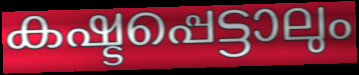
കഷ്ടപ്പെട്ടാലും